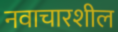
नवाचारशील